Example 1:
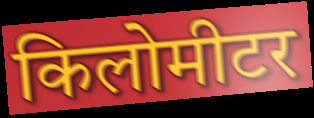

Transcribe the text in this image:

किलोमीटर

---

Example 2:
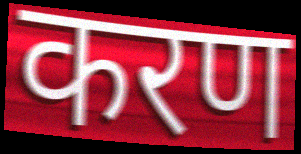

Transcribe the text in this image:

करण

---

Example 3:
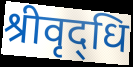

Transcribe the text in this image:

श्रीवृद्धि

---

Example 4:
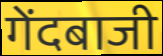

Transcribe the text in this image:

गेंदबाजी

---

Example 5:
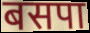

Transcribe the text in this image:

बसपा